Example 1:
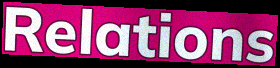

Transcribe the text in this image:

Relations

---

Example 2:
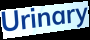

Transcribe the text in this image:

Urinary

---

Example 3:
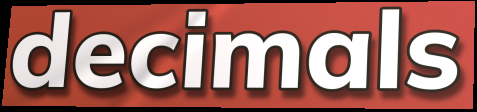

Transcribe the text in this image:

decimals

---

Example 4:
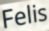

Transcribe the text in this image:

Felis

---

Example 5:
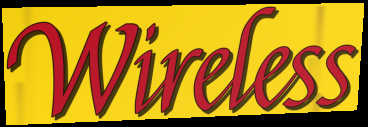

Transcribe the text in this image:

Wireless